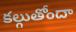
కల్గుతోందా